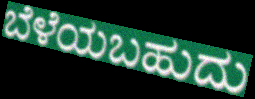
ಬೆಳೆಯಬಹುದು